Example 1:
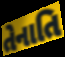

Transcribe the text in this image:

તેનાતિ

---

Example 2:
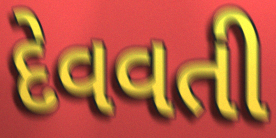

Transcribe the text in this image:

દેવવતી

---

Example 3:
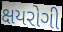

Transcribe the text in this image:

ક્ષયરોગી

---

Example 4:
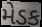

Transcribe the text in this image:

મેડક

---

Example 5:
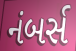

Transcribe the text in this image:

નંબર્સ